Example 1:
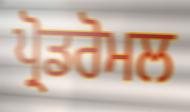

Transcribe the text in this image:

ਪ੍ਰੋਡਰੋਮਲ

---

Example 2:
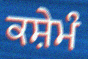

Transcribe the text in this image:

ਕਸ਼ੇਮੰ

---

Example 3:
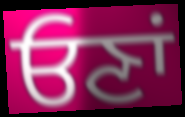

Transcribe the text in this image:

ਓਣਾਂ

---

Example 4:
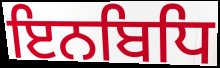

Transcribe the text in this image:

ਇਨਬਿਧਿ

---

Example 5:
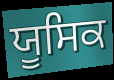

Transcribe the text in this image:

ਯੂਸਿਕ